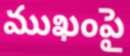
ముఖంపై